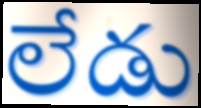
లేడు